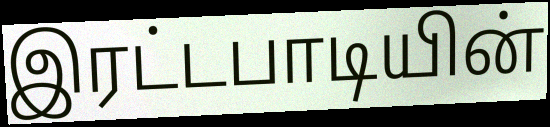
இரட்டபாடியின்